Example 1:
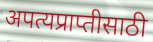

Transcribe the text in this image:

अपत्यप्राप्तीसाठी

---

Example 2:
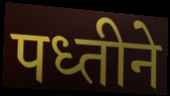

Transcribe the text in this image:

पध्तीने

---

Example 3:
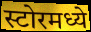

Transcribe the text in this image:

स्टोरमध्ये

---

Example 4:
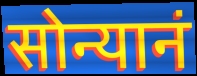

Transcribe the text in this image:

सोन्यानं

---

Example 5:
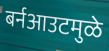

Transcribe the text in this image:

बर्नआउटमुळे